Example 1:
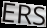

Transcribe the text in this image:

ERS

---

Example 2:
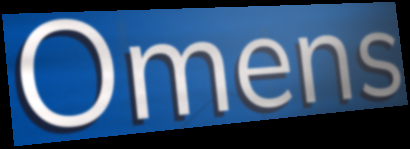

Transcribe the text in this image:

Omens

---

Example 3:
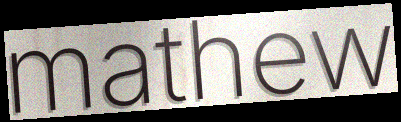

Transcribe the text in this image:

mathew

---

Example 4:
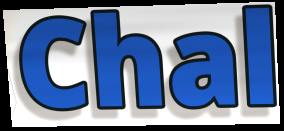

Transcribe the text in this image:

Chal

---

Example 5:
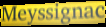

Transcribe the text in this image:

Meyssignac